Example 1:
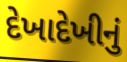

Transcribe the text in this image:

દેખાદેખીનું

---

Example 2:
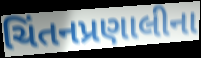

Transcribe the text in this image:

ચિંતનપ્રણાલીના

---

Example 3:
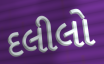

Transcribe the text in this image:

દલીલો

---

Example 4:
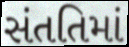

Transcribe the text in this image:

સંતતિમાં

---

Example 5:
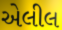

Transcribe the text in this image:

એલીલ